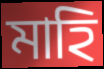
মাহি